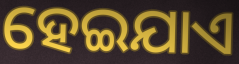
ହେଇଯାଏ